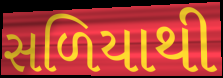
સળિયાથી